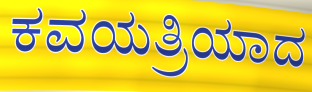
ಕವಯತ್ರಿಯಾದ